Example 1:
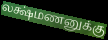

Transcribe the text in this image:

லக்ஷ்மணனுக்கு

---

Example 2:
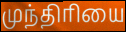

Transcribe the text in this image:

முந்திரியை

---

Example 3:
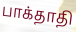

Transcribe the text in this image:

பாக்தாதி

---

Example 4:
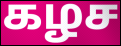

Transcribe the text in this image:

கழச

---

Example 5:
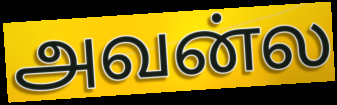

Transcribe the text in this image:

அவன்ல